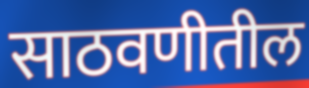
साठवणीतील